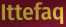
Ittefaq